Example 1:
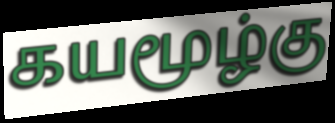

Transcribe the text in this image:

கயமூழ்கு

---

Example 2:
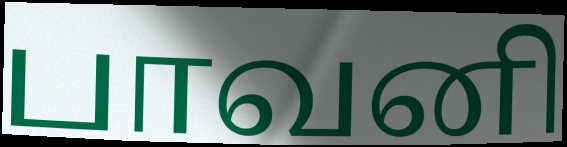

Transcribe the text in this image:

பாவனி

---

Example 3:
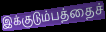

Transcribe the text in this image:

இக்குடும்பத்தைச்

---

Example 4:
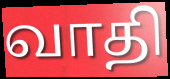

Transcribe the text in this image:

வாதி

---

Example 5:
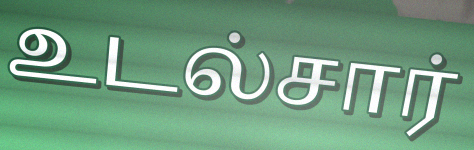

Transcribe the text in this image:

உடல்சார்